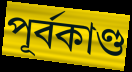
পূর্বকাণ্ড